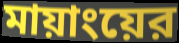
মায়াংয়ের